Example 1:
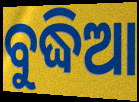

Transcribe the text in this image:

ବୁଦ୍ଧିଆ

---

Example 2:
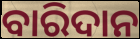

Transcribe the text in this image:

ବାରିଦାନ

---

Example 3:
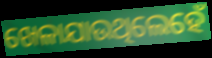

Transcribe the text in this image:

ଖେଳାଯାଉଥିଲେହେଁ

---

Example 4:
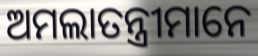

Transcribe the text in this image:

ଅମଲାତନ୍ତ୍ରୀମାନେ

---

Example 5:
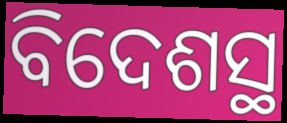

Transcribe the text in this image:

ବିଦେଶସ୍ଥ